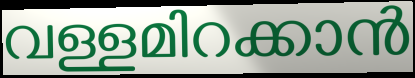
വള്ളമിറക്കാൻ